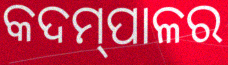
କଦମ୍‍ପାଳର